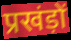
प्रखंड़ों